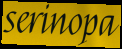
serinopa